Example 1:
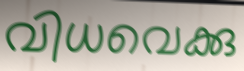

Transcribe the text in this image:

വിധവെക്കു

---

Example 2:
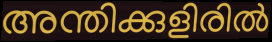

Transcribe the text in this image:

അന്തിക്കുളിരിൽ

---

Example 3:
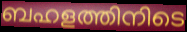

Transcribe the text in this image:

ബഹളത്തിനിടെ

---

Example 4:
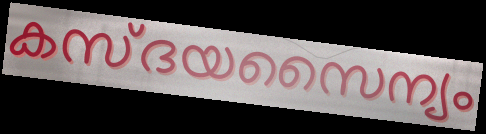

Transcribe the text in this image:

കസ്ദയസൈന്യം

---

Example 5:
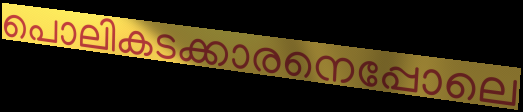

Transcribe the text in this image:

പൊലികടക്കാരനെപ്പോലെ